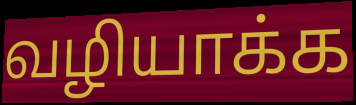
வழியாக்க